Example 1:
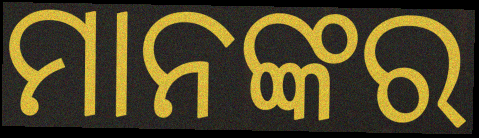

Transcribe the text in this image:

ମାନଙ୍କର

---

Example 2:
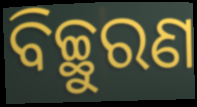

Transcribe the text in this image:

ବିଚ୍ଛୁରଣ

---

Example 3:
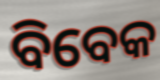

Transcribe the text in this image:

ବିବେକ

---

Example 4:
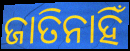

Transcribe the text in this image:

ଜାତିନାହିଁ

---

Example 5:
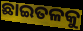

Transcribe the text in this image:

ଛାଇତଳକୁ